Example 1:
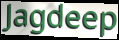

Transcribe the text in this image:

Jagdeep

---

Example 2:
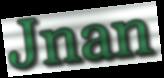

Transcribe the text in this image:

Jnan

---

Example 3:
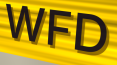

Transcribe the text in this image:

WFD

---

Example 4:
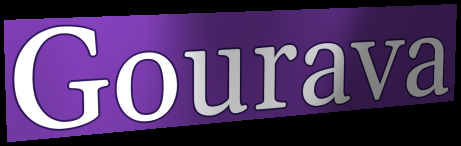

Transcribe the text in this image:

Gourava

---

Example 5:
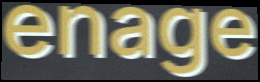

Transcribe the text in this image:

enage